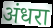
अंधरा